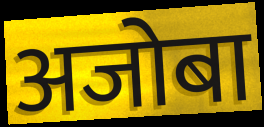
अजोबा